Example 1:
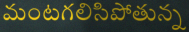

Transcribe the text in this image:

మంటగలిసిపోతున్న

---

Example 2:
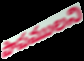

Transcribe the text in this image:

పాపములని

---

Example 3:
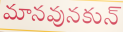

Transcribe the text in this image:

మానవునకున్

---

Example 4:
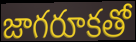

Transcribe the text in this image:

జాగరూకతో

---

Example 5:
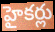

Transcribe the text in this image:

హైకర్లు